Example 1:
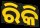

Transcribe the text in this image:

ରିକି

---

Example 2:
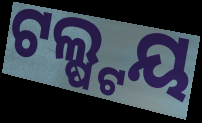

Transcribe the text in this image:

ଟଲ୍ଷ୍ଟୟ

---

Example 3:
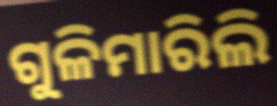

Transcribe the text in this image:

ଗୁଳିମାରିଲି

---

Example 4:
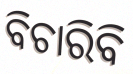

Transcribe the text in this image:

ବିଚାରିବି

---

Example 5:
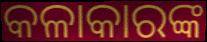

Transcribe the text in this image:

କଳାକାରଙ୍କ